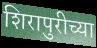
शिरापुरीच्या